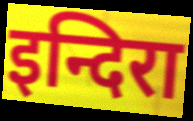
इन्दिरा